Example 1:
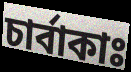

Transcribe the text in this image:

চার্বাকাঃ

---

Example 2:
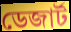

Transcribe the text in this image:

ডেজার্ট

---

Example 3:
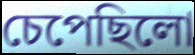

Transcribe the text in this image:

চেপেছিলো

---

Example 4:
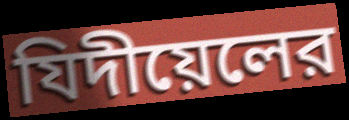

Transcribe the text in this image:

যিদীয়েলের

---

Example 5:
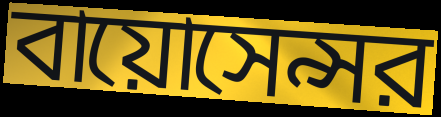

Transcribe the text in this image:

বায়োসেন্সর